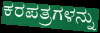
ಕರಪತ್ರಗಳನ್ನು